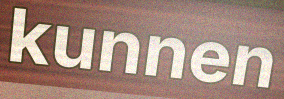
kunnen